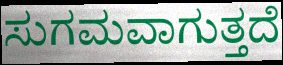
ಸುಗಮವಾಗುತ್ತದೆ